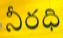
నీరధి